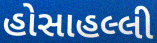
હોસાહલ્લી